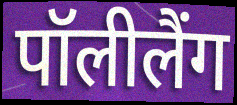
पॉलीलैंग